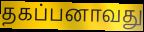
தகப்பனாவது